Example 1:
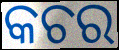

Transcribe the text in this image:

କଚର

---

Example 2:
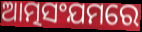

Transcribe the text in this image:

ଆତ୍ମସଂଯମରେ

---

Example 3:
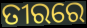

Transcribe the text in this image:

ତୀରରେ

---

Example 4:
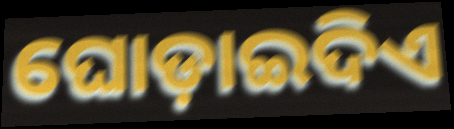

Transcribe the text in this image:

ଘୋଡ଼ାଇଦିଏ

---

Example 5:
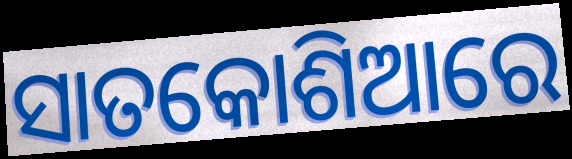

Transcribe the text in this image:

ସାତକୋଶିଆରେ